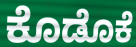
ಕೊಡೊಕೆ